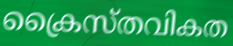
ക്രൈസ്തവികത